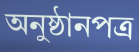
অনুষ্ঠানপত্র